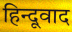
हिन्दूवाद